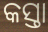
କସ୍ତା